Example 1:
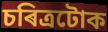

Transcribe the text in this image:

চৰিত্ৰটোক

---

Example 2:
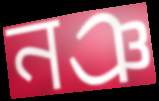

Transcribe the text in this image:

নঞ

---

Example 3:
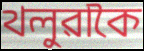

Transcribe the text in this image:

থলুৱাকৈ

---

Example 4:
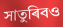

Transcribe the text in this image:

সাতুৰিবও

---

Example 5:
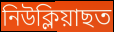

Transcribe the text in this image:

নিউক্লিয়াছত